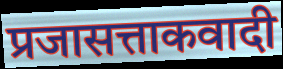
प्रजासत्ताकवादी